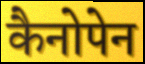
कैनोपेन